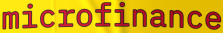
microfinance